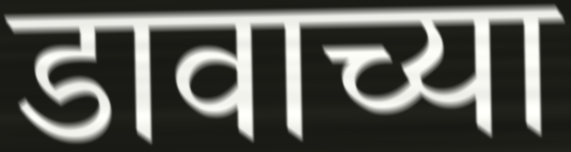
डावाच्या